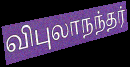
விபுலாநந்தர்